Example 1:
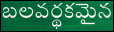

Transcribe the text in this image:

బలవర్థకమైన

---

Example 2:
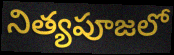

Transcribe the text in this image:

నిత్యపూజలో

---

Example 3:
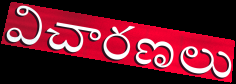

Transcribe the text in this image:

విచారణలు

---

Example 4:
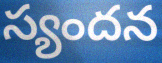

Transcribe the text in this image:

స్యందన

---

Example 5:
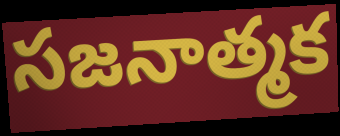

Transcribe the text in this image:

సజనాత్మక